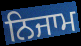
ਨਿਜਾਮ